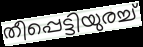
തീപ്പെട്ടിയുരച്ച്